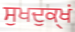
ਸੁਖਦੁਕ੍ਖਂ